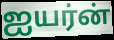
ஐயர்ன்